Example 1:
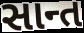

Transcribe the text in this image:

સાન્ત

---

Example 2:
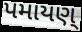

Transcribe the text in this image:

પમાયણ્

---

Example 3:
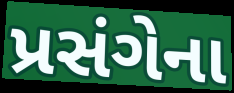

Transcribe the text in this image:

પ્રસંગેના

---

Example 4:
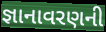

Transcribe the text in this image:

જ્ઞાનાવરણની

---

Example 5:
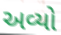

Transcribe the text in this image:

અવ્યો